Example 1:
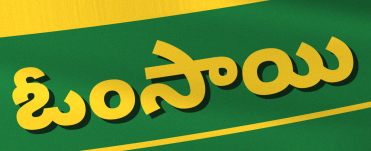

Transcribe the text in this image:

ఓంసాయి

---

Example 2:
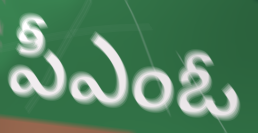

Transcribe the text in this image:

పీఎంఓ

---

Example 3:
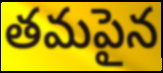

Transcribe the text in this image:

తమపైన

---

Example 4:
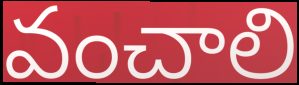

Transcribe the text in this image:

వంచాలి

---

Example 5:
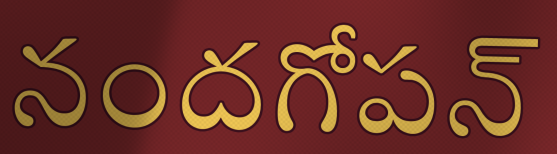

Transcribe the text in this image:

నందగోపన్